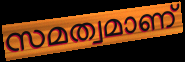
സമത്വമാണ്